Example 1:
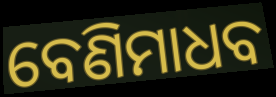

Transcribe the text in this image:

ବେଣିମାଧବ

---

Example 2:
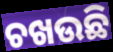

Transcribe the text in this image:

ଚଖଉଛି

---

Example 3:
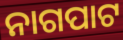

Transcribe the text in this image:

ନାଗପାଟ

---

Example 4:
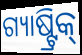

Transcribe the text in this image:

ଗ୍ୟାଷ୍ଟ୍ରିକ୍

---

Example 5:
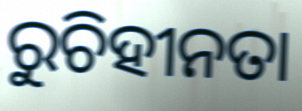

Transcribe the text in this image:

ରୁଚିହୀନତା